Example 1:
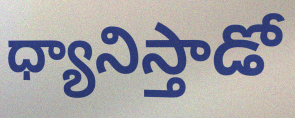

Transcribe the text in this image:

ధ్యానిస్తాడో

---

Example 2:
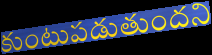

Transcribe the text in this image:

కుంటుపడుతుందని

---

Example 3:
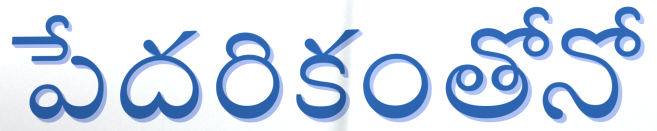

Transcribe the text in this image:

పేదరికంతోనో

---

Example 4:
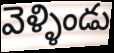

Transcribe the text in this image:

వెళ్ళిండు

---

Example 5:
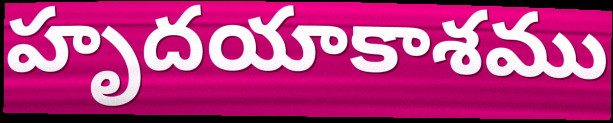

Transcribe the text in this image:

హృదయాకాశము